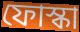
ফোস্কা